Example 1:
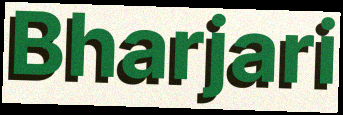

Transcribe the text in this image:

Bharjari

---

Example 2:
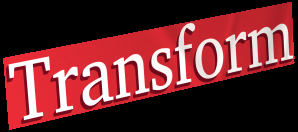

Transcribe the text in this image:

Transform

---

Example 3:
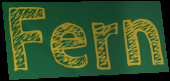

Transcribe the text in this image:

Fern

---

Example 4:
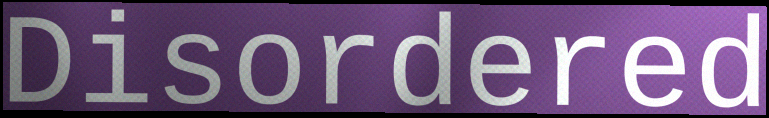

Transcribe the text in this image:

Disordered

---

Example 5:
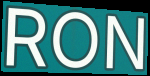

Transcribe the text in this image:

RON